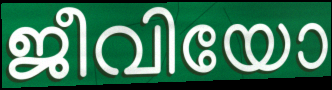
ജീവിയോ